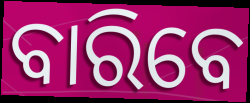
ବାରିବେ